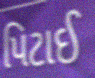
પિટાઈ